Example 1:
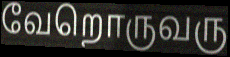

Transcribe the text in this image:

வேறொருவரு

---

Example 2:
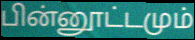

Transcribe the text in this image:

பின்னூட்டமும்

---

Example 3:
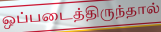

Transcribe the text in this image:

ஒப்படைத்திருந்தால்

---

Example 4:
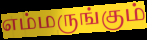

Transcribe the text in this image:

எம்மருங்கும்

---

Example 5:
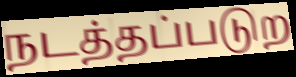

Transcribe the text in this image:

நடத்தப்படுற